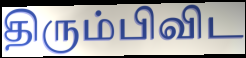
திரும்பிவிட